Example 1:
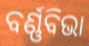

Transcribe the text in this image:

ବର୍ଣ୍ଣବିଭା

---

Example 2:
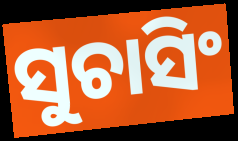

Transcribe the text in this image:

ସୁଚାସିଂ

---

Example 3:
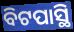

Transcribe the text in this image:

ବିଟପାସ୍ଥି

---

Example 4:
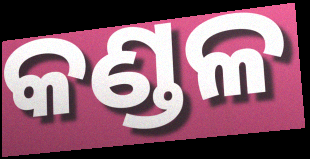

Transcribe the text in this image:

କଣ୍ଡଳ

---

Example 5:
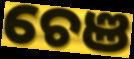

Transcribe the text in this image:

ଚେଞ